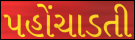
પહોંચાડતી